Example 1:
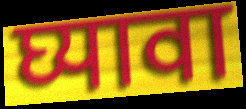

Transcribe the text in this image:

घ्यावा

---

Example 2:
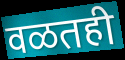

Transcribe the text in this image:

वळतही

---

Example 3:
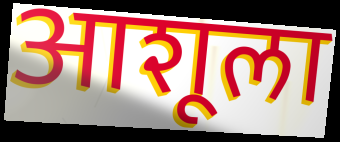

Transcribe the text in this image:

आशूला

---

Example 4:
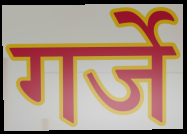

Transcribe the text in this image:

गर्जे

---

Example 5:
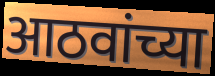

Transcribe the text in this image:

आठवांच्या